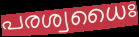
പരശ്വധൈഃ